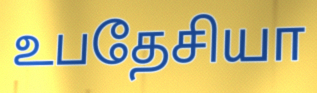
உபதேசியா